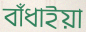
বাঁধাইয়া